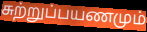
சுற்றுப்பயணமும்